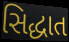
સિદ્ધાત